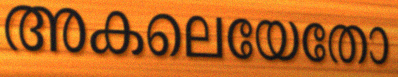
അകലെയേതോ